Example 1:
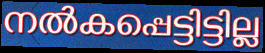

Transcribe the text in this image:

നൽകപ്പെട്ടിട്ടില്ല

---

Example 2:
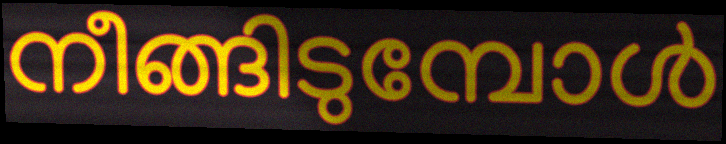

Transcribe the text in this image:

നീങ്ങിടുമ്പോൾ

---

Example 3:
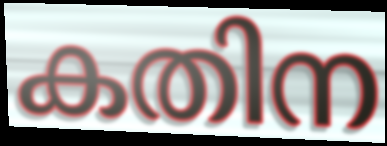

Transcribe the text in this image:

കതിന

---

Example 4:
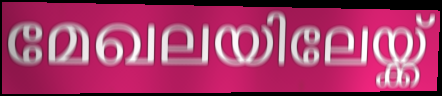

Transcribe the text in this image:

മേഖലയിലേയ്ക്ക്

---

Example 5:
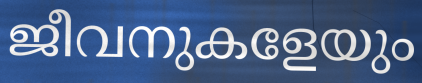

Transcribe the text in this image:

ജീവനുകളേയും